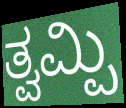
ತ್ವಮ್ಪಿ